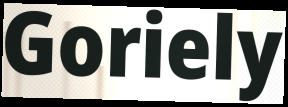
Goriely